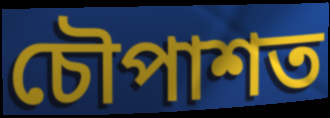
চৌপাশত